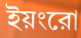
ইয়ংরো